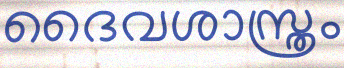
ദൈവശാസ്ത്രം